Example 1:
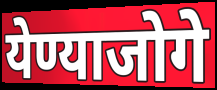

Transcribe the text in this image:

येण्याजोगे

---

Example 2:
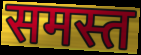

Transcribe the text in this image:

समस्त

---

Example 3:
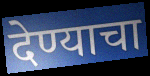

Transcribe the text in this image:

देण्याचा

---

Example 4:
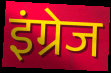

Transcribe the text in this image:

इंग्रेज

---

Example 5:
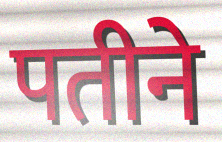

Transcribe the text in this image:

पतीने